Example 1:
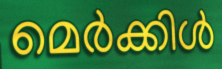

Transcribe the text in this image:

മെർക്കിൾ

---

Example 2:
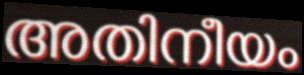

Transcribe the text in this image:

അതിനീയം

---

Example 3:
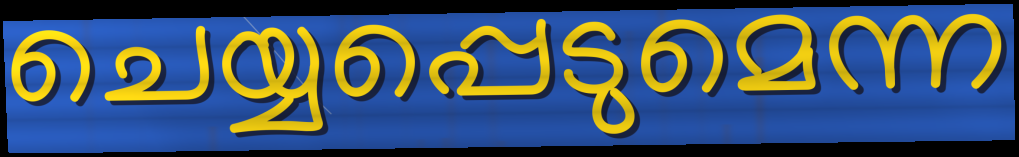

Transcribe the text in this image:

ചെയ്യപ്പെടുമെന്ന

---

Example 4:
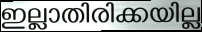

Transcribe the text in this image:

ഇല്ലാതിരിക്കയില്ല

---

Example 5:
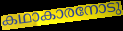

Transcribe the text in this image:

കഥാകാരനോടു